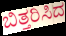
ಬಿತ್ತರಿಸಿದ